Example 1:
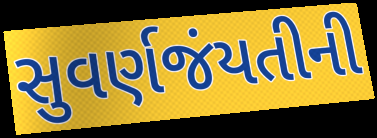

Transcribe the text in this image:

સુવર્ણજંયતીની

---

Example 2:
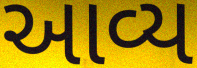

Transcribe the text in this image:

આવ્ય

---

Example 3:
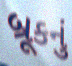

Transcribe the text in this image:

બ્રૂકનું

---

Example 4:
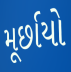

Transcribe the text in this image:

મૂર્છાયો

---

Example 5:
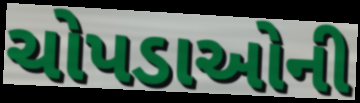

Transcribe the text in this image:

ચોપડાઓની